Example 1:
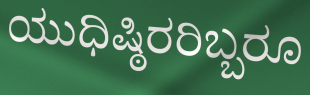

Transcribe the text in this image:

ಯುಧಿಷ್ಠಿರರಿಬ್ಬರೂ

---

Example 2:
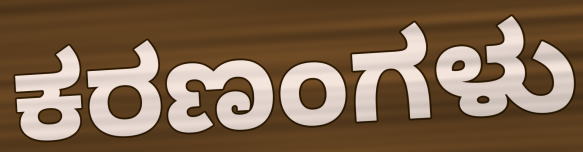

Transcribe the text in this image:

ಕರಣಂಗಳು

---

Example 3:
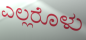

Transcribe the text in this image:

ಎಲ್ಲರೊಳು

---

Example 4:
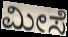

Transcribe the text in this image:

ಮೀಸೆ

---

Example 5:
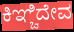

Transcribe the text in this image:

ಕಿಞ್ಚಿದೇವ